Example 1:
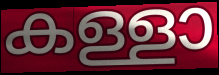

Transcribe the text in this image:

കള്ളാ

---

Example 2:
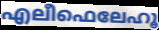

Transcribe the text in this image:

എലീഫെലേഹൂ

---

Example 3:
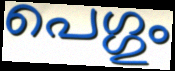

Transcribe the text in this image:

പെഗ്ഗും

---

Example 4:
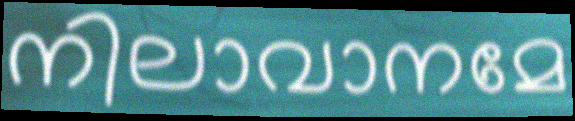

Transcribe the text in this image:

നിലാവാനമേ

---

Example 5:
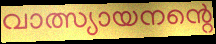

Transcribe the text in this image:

വാത്സ്യായനന്റെ